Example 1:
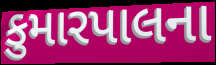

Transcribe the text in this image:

કુમારપાલના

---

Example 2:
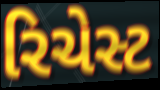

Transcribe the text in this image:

રિચેસ્ટ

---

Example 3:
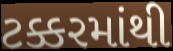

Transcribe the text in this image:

ટક્કરમાંથી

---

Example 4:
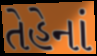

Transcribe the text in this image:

તેહેનાં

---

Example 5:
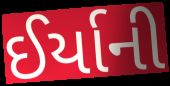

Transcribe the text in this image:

ઈર્યાની